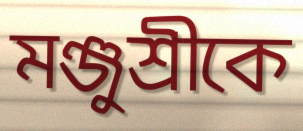
মঞ্জুশ্রীকে